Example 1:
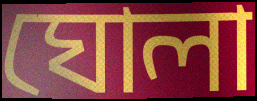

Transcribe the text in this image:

ঘোলা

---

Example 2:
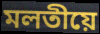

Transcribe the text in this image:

মলতীয়ে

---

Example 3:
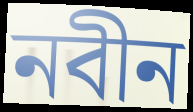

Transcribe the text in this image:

নবীন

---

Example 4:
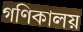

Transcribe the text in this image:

গণিকালয়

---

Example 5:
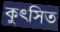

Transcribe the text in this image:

কুৎসিত